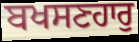
ਬਖਸਣਹਾਰੁ